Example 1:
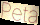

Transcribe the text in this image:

Peta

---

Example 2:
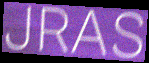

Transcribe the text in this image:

JRAS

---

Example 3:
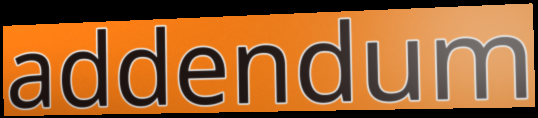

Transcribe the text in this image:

addendum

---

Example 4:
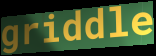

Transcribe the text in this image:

griddle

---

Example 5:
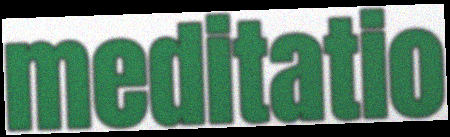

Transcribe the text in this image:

meditatio